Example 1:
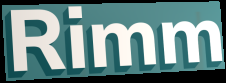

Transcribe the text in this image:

Rimm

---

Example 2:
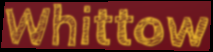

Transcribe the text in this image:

Whittow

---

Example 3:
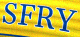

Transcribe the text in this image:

SFRY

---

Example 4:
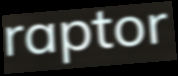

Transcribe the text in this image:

raptor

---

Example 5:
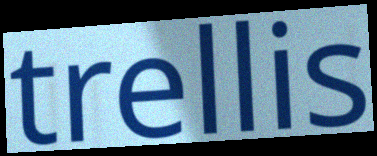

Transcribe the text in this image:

trellis